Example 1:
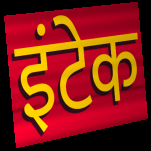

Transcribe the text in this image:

इंटेक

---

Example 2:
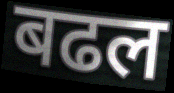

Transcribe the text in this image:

बढल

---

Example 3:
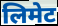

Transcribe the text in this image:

लिमेट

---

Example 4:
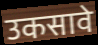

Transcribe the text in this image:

उकसावे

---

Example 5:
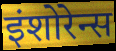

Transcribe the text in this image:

इंशोरेन्स